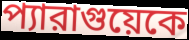
প্যারাগুয়েকে